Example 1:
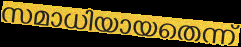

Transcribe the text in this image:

സമാധിയായതെന്ന്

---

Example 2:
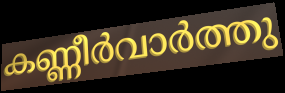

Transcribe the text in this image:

കണ്ണീർവാർത്തു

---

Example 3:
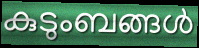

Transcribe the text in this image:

കുടുംബങ്ങൾ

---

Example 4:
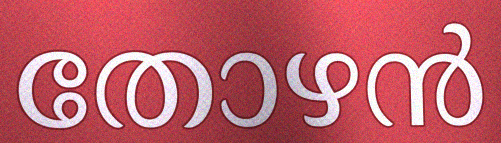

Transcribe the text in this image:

തോഴൻ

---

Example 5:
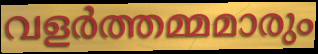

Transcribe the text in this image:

വളർത്തമ്മമാരും